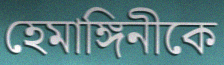
হেমাঙ্গিনীকে